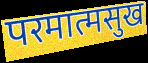
परमात्मसुख